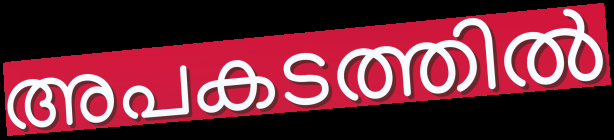
അപകടത്തിൽ